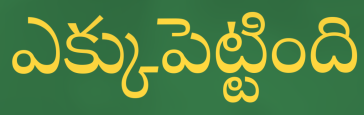
ఎక్కుపెట్టింది